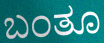
ಬಂತೂ